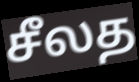
சீலத